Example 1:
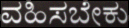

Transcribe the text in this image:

ವಹಿಸಬೇಕು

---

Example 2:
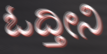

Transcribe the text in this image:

ಓದ್ತೀನಿ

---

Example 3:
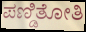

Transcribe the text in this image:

ಪಣ್ಡಿತೋತಿ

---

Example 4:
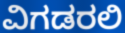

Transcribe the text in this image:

ವಿಗಡರಲಿ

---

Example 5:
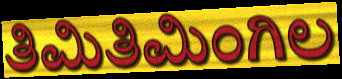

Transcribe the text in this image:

ತಿಮಿತಿಮಿಂಗಿಲ